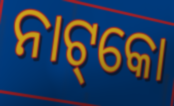
ନାଟ୍‌କୋ